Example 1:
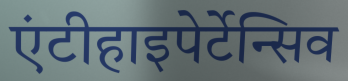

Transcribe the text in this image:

एंटीहाइपेर्टेन्सिव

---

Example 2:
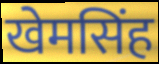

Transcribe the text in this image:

खेमसिंह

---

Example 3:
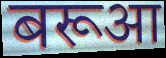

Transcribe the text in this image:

बरूआ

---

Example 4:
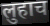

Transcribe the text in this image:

लुहाच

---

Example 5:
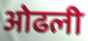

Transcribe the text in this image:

ओढली